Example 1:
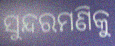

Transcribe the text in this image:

ସୁନ୍ଦରମଣିକୁ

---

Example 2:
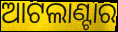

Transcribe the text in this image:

ଆଟଲାଣ୍ଟାର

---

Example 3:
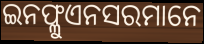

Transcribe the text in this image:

ଇନଫ୍ଳୁଏନସରମାନେ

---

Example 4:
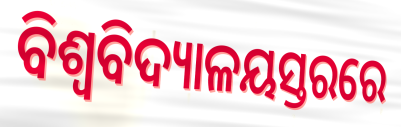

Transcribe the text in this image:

ବିଶ୍ୱବିଦ୍ୟାଳୟସ୍ତରରେ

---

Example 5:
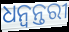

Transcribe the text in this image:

ଧନ୍ବନ୍ତରୀ